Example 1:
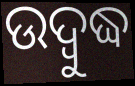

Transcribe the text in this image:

ଉଦ୍ବୁଦ୍ଧ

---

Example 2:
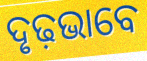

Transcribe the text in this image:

ଦୃଢ଼ଭାବେ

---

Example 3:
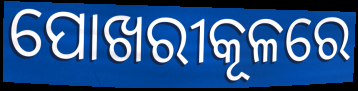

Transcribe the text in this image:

ପୋଖରୀକୂଳରେ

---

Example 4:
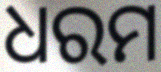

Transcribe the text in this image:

ଧରମ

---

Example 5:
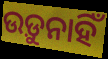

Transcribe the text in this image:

ଉଡ଼ୁନାହିଁ